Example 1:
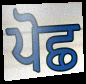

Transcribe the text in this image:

ਪੋਛ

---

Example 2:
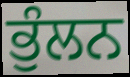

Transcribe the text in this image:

ਭੁੰਲਨ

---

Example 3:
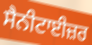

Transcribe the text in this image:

ਸੈਨੀਟਾਈਜ਼ਰ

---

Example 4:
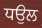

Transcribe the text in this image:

ਧਉਲ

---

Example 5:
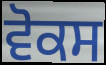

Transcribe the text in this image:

ਵੋਕਸ